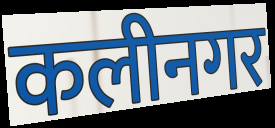
कलीनगर